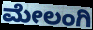
ಮೇಲಂಗಿ